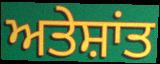
ਅਤੇਸ਼ਾਂਤ